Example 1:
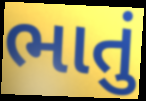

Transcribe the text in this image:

ભાતું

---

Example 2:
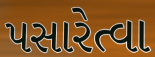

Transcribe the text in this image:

પસારેત્વા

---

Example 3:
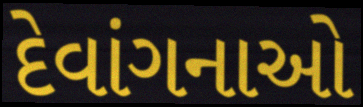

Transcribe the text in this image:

દેવાંગનાઓ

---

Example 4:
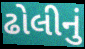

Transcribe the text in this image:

ઢોલીનું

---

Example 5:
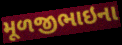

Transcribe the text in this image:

મૂળજીભાઇના